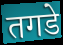
तगडे